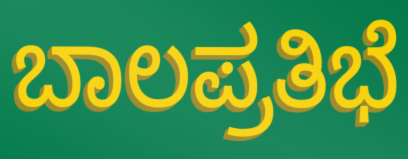
ಬಾಲಪ್ರತಿಭೆ